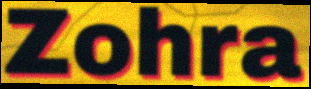
Zohra